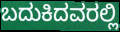
ಬದುಕಿದವರಲ್ಲಿ